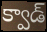
క్వాడ్